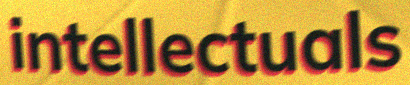
intellectuals